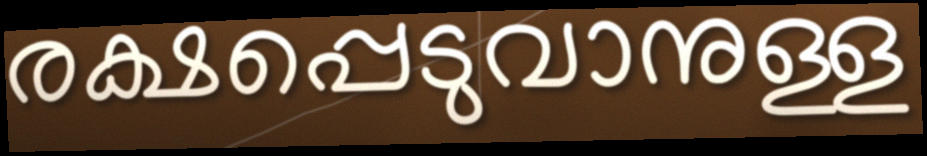
രക്ഷപ്പെടുവാനുള്ള